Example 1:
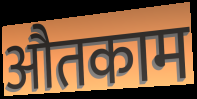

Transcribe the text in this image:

औतकाम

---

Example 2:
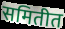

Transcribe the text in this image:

समितीत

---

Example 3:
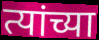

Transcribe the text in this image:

त्यांच्या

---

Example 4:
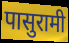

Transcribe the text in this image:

पासुरामी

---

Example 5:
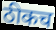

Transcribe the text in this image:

ठीकच